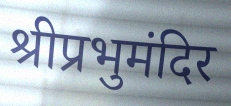
श्रीप्रभुमंदिर